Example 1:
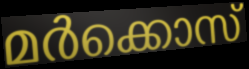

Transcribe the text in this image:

മർക്കൊസ്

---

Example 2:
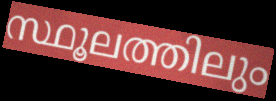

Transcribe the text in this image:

സ്ഥൂലത്തിലും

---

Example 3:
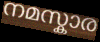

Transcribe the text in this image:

നമസ്കാര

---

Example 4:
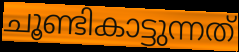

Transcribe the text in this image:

ചൂണ്ടികാട്ടുന്നത്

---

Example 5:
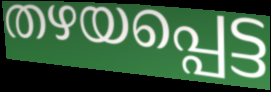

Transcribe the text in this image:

തഴയപ്പെട്ട